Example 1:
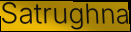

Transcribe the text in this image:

Satrughna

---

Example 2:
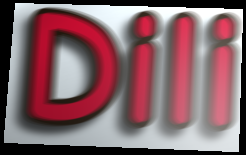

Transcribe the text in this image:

Dili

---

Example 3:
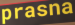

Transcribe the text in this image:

prasna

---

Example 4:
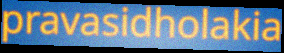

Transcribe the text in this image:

pravasidholakia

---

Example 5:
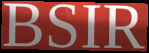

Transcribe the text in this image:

BSIR